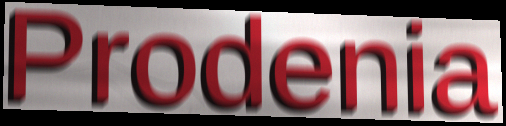
Prodenia